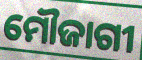
ମୌଜାଗୀ